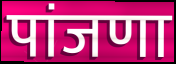
पांजणा